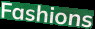
Fashions